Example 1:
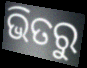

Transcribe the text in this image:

ଭିତରୁ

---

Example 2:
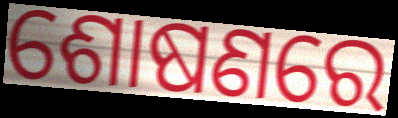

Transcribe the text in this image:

ଶୋଷଣରେ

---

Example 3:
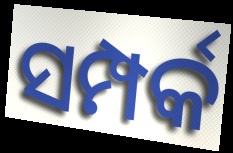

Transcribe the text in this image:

ସମ୍ପର୍କ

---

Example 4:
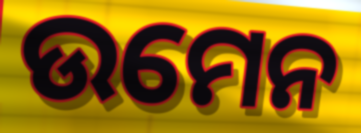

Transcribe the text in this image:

ଉମେନ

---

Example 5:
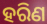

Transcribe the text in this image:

ହରିଣ